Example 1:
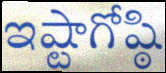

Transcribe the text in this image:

ఇష్టాగోష్ఠి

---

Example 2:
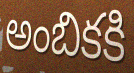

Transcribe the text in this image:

అంబికకి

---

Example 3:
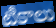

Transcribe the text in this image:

టీకాలు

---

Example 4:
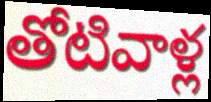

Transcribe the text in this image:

తోటివాళ్ల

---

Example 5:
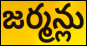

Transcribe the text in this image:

జర్మన్లు